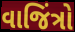
વાજિંત્રો